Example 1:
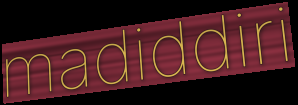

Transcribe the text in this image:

madiddiri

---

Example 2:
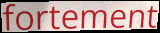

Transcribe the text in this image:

fortement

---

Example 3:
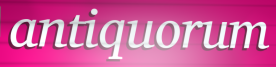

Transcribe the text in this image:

antiquorum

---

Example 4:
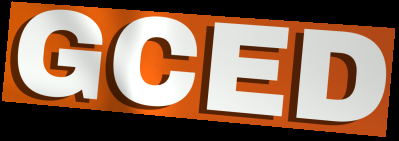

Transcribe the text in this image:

GCED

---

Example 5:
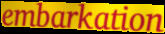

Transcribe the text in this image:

embarkation